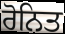
ਰੋਨਿਤ